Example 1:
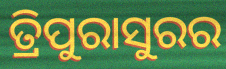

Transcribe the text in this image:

ତ୍ରିପୁରାସୁରର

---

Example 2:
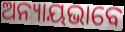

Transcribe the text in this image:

ଅନ୍ୟାୟଭାବେ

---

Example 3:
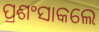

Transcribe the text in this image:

ପ୍ରଶଂସାକଲେ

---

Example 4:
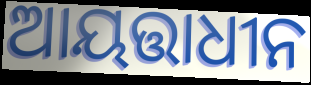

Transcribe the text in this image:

ଆୟତ୍ତାଧୀନ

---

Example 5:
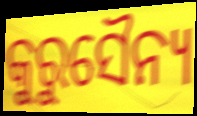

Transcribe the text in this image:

କୁରୁସୈନ୍ୟ